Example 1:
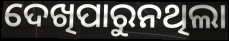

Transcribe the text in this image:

ଦେଖିପାରୁନଥିଲା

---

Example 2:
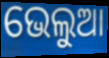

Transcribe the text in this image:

ଭେଲୁଆ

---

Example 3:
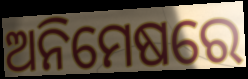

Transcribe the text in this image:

ଅନିମେଷରେ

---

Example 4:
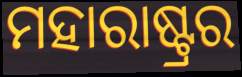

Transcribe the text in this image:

ମହାରାଷ୍ଟ୍ରର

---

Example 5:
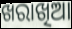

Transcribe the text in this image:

ଖରାଖିଆ